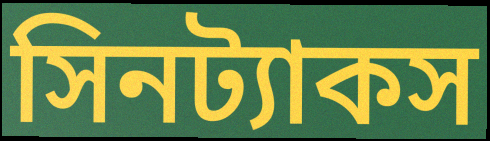
সিনট্যাকস